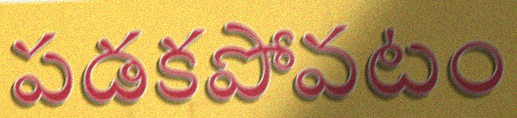
పడకపోవటం